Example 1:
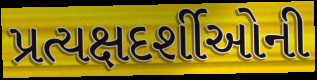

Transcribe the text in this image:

પ્રત્યક્ષદર્શીઓની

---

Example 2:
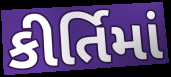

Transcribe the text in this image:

કીર્તિમાં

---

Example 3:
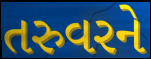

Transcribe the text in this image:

તરુવરને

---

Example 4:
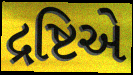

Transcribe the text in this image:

દ્રષ્ટિએ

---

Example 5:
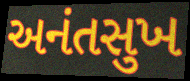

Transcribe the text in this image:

અનંતસુખ